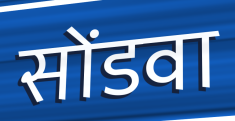
सोंडवा